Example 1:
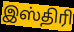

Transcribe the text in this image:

இஸ்திரி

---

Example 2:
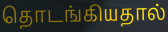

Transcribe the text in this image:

தொடங்கியதால்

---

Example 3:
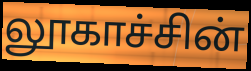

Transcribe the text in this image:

லூகாச்சின்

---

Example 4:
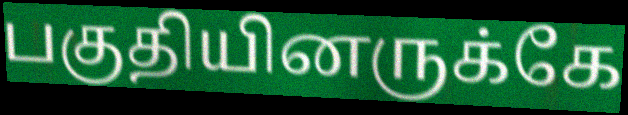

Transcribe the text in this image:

பகுதியினருக்கே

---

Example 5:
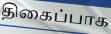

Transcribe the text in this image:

திகைப்பாக